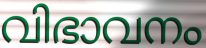
വിഭാവനം